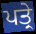
ਪਤ੍ਰੇ